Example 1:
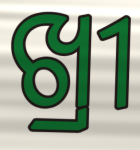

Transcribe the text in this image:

ଖ୍ରୀ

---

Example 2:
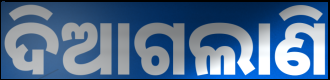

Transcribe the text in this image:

ଦିଆଗଲାଣି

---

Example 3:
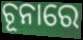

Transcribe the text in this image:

ଚୂନାରେ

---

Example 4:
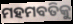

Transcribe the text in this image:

ମହମବତିକୁ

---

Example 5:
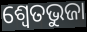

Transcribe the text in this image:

ଶ୍ଵେତଭୁଜା